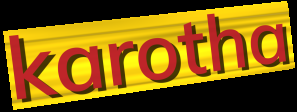
karotha